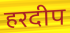
हरदीप